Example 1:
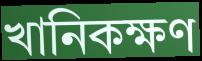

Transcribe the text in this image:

খানিকক্ষণ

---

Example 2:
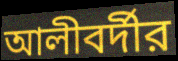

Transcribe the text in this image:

আলীবর্দীর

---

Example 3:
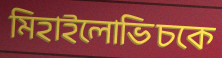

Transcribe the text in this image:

মিহাইলোভিচকে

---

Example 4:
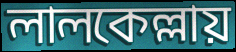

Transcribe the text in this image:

লালকেল্লায়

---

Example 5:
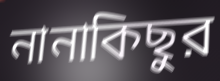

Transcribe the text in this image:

নানাকিছুর